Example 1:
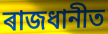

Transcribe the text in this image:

ৰাজধানীত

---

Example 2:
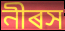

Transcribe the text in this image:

নীৰস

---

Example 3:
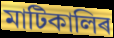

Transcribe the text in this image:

মাটিকালিৰ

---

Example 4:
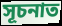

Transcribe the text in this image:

সূচনাত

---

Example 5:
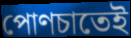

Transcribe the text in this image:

পোণচাতেই